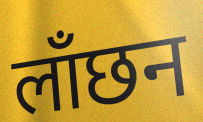
लाँछन